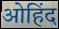
ओहिंद